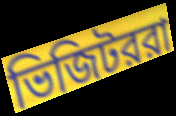
ভিজিটররা